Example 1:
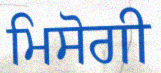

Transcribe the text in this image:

ਮਿਸੋਗੀ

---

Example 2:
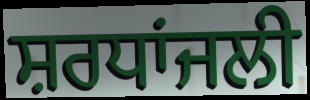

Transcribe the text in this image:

ਸ਼ਰਧਾਂਜਲੀ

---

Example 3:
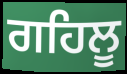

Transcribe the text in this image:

ਗਹਿਲੂ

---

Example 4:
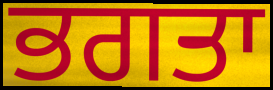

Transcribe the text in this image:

ਭਗਤਾ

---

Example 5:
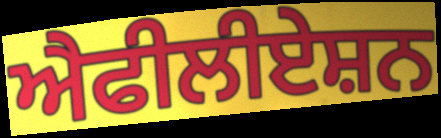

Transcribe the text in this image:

ਐਫੀਲੀਏਸ਼ਨ